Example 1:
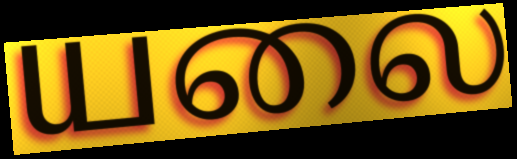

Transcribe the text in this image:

யலை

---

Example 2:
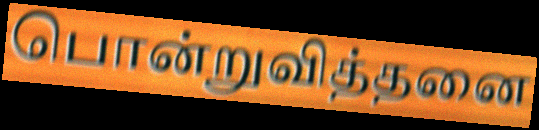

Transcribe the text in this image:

பொன்றுவித்தனை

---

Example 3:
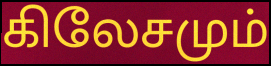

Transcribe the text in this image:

கிலேசமும்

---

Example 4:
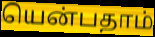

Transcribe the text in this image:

யென்பதாம்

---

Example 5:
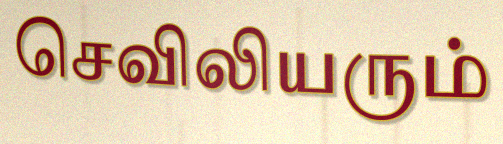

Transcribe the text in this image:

செவிலியரும்